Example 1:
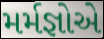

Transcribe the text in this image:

મર્મજ્ઞોએ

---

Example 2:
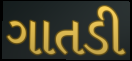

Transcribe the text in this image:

ગાતડી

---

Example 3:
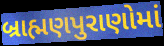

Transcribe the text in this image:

બ્રાહ્મણપુરાણોમાં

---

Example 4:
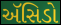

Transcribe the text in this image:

ઍસિડો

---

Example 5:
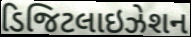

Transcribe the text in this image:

ડિજિટલાઇઝેશન